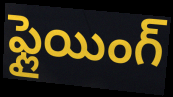
ఫ్లైయింగ్